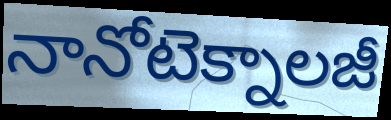
నానోటెక్నాలజీ